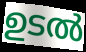
ഉടൽ